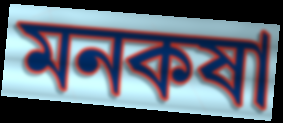
মনকষা